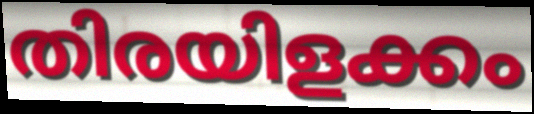
തിരയിളക്കം